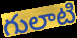
గులాటి